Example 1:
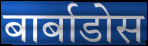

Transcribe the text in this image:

बार्बाडोस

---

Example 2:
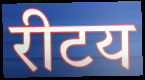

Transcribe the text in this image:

रीटय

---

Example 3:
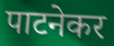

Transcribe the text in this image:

पाटनेकर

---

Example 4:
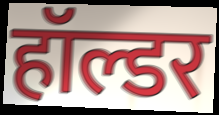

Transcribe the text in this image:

हॉल्डर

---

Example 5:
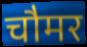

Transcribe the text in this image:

चौमर